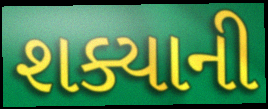
શક્યાની